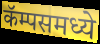
कॅम्पसमध्ये